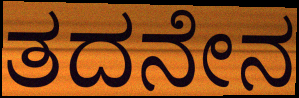
ತದನೇನ